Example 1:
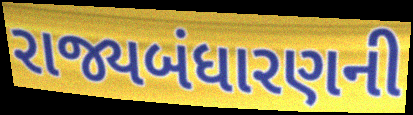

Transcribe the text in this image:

રાજ્યબંધારણની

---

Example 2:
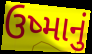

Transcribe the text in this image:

ઉષ્માનું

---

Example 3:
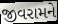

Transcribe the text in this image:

જીવરામને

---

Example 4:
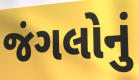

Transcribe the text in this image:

જંગલોનું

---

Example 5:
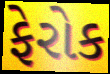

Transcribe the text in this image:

ફેરોક